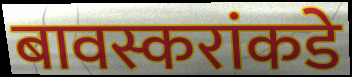
बावस्करांकडे